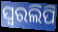
ସ୍ଵରଲିପି